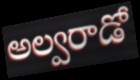
అల్వరాడో